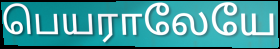
பெயராலேயே